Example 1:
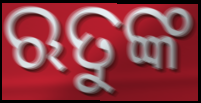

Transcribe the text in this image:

ଋତୁଙ୍କ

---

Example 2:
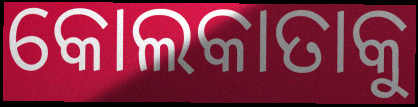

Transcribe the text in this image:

କୋଲକାତାକୁ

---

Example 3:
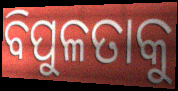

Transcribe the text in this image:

ବିପୁଳତାକୁ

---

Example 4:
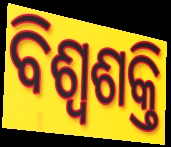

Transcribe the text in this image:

ବିଶ୍ଵଶକ୍ତି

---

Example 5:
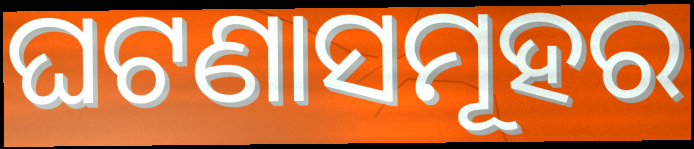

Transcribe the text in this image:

ଘଟଣାସମୂହର